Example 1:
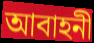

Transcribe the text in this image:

আবাহনী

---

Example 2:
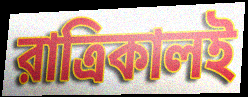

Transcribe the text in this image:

রাত্রিকালই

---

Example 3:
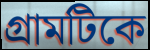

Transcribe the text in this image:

গ্রামটিকে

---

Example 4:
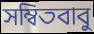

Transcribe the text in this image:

সম্বিতবাবু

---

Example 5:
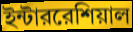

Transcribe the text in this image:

ইন্টাররেশিয়াল